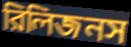
রিলিজনস